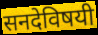
सनदेविषयी